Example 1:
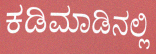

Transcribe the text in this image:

ಕಡಿಮಾಡಿನಲ್ಲಿ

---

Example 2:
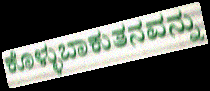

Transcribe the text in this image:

ಕೊಳ್ಳುಬಾಕುತನವನ್ನು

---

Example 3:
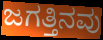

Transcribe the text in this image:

ಜಗತ್ತಿನವು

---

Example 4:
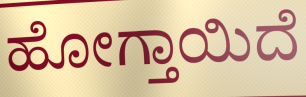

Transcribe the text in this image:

ಹೋಗ್ತಾಯಿದೆ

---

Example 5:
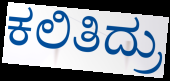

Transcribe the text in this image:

ಕಲಿತಿದ್ರು